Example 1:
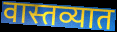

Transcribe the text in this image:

वास्तव्यात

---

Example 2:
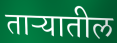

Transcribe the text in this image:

ताऱ्यातील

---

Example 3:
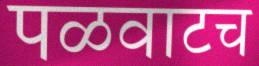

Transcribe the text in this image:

पळवाटच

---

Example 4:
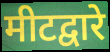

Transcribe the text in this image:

मीटद्वारे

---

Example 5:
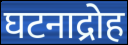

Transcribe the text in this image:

घटनाद्रोह